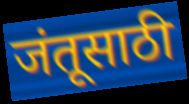
जंतूसाठी